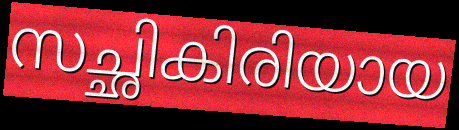
സച്ഛികിരിയായ